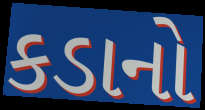
કડાનો